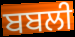
ਬਬਲੀ